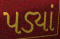
પડ્યાં